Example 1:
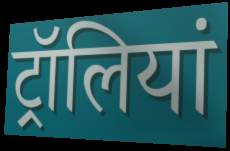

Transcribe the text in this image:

ट्रॉलियां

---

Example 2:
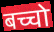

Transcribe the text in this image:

बच्चो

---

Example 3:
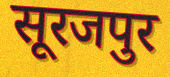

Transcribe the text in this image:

सूरजपुर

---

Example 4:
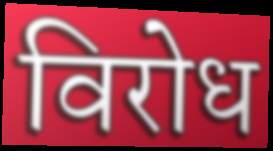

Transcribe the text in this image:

विरोध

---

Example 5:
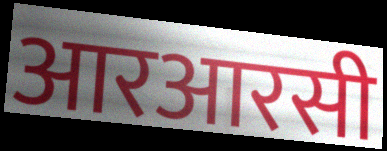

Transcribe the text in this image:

आरआरसी